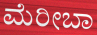
ಮೆರೀಬಾ